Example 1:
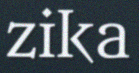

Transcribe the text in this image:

zika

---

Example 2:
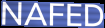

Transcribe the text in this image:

NAFED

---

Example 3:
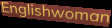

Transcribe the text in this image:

Englishwoman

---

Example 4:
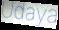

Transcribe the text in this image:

Udaya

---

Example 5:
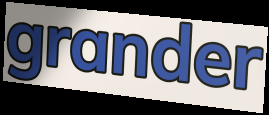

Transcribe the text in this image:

grander